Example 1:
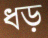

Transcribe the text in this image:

ধড়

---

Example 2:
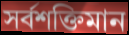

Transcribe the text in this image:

সর্বশক্তিমান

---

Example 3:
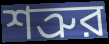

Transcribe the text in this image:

শত্রুর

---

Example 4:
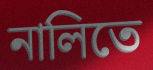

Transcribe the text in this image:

নালিতে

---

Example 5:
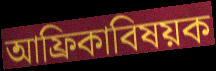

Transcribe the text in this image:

আফ্রিকাবিষয়ক